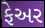
ફેઅર